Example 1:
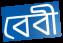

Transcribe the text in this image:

বেবী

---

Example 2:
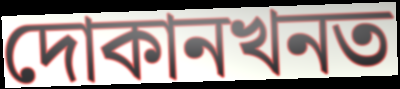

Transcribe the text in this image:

দোকানখনত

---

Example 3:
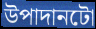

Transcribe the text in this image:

উপাদানটো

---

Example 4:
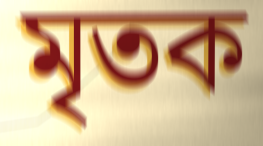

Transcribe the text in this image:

মৃতক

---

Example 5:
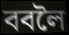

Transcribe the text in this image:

ববলৈ